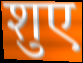
शुए